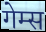
गेम्स